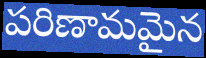
పరిణామమైన